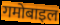
गमोबाइल